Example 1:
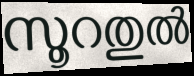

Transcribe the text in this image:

സൂറതുൽ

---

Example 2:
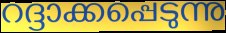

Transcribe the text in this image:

റദ്ദാക്കപ്പെടുന്നു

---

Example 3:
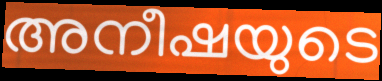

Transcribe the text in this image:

അനീഷയുടെ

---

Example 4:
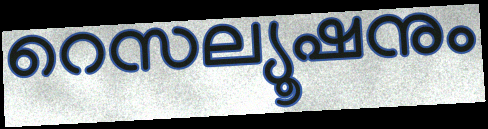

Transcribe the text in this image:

റെസല്യൂഷനും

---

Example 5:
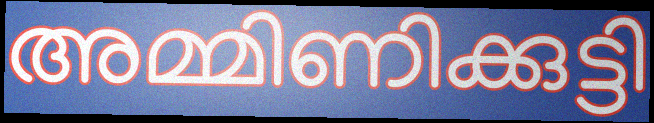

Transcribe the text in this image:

അമ്മിണിക്കുട്ടി